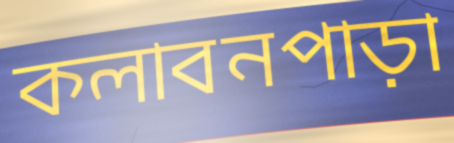
কলাবনপাড়া